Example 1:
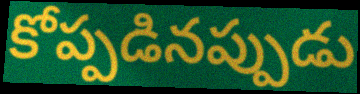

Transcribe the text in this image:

కోప్పడినప్పుడు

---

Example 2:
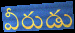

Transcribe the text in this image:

వీరుడు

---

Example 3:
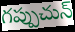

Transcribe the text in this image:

గప్పుచున్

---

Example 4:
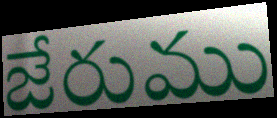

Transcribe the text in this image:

జేరుము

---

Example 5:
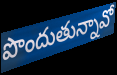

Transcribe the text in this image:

పొందుతున్నావో